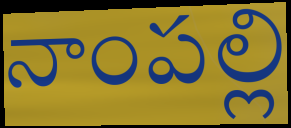
నాంపల్లి